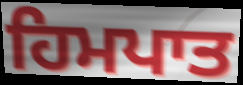
ਹਿਮਪਾਤ